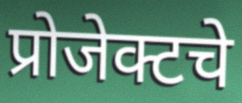
प्रोजेक्टचे